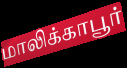
மாலிக்காபூர்